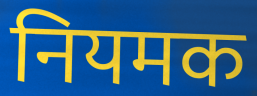
नियमक